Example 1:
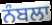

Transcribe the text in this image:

ਨੰਬਲਾ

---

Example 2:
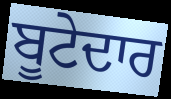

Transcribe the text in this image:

ਬੂਟੇਦਾਰ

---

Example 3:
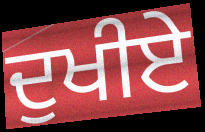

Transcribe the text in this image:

ਦੁਖੀਏ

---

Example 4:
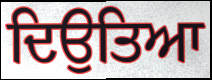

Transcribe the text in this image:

ਦਿਉਤਿਆ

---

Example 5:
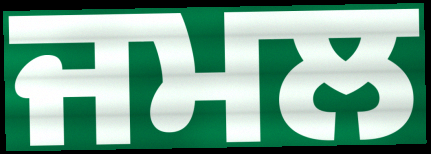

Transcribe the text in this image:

ਜਮਲ